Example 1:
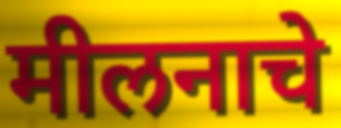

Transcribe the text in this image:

मीलनाचे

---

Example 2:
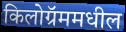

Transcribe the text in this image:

किलोग्रॅममधील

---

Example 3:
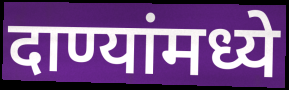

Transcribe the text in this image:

दाण्यांमध्ये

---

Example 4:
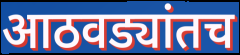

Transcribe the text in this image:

आठवड्यांतच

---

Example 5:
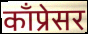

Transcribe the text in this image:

काँप्रेसर